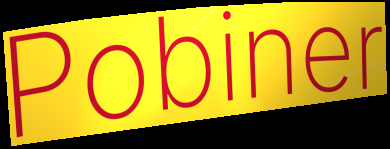
Pobiner